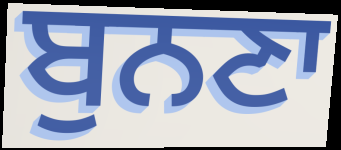
ਬੁਨਣਾ